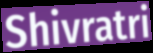
Shivratri